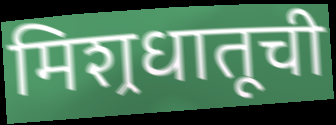
मिश्रधातूची